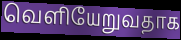
வெளியேறுவதாக